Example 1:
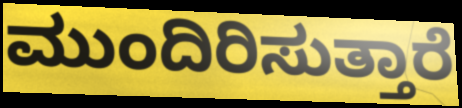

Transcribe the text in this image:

ಮುಂದಿರಿಸುತ್ತಾರೆ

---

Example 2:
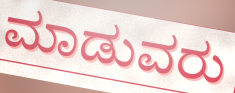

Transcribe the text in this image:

ಮಾಡುವರು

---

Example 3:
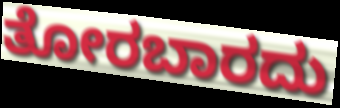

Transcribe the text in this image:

ತೋರಬಾರದು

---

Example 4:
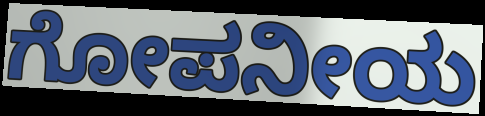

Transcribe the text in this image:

ಗೋಪನೀಯ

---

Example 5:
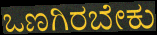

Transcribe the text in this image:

ಒಣಗಿರಬೇಕು